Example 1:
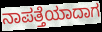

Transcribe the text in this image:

ನಾಪತ್ತೆಯಾದಾಗ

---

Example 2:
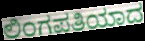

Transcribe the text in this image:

ಲಿಂಗಪತಿಯಾದ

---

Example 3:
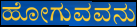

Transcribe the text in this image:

ಹೋಗುವವನು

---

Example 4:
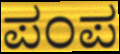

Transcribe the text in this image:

ಪಂಪ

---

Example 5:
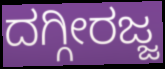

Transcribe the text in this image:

ದಗ್ಗೀರಜ್ಜ